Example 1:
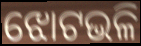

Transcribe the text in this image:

ଝୋଟଭଳି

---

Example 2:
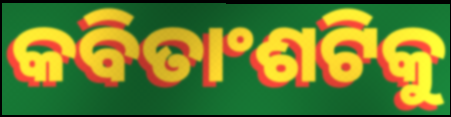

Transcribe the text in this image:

କବିତାଂଶଟିକୁ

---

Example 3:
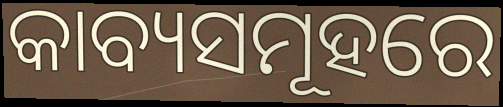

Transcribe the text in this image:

କାବ୍ୟସମୂହରେ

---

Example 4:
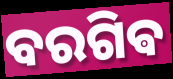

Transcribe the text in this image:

ବରଗିଵ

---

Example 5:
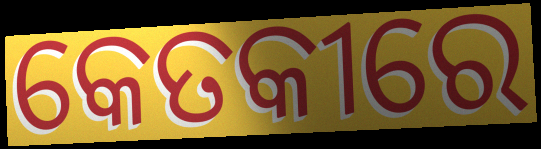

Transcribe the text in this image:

କେତକୀରେ